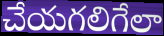
చేయగలిగేలా